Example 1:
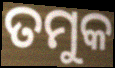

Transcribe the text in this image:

ତମୁକ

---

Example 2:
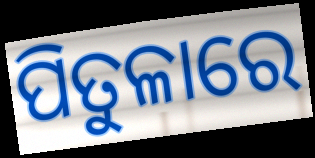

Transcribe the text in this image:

ପିତୁଳାରେ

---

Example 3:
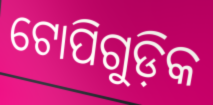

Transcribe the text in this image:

ଟୋପିଗୁଡ଼ିକ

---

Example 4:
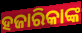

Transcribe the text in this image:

ହଜାରିକାଙ୍କ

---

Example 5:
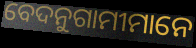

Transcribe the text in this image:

ବେଦନୁଗାମୀମାନେ